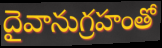
దైవానుగ్రహంతో